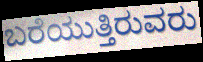
ಬರೆಯುತ್ತಿರುವರು